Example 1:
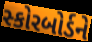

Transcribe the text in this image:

સ્કોરબોર્ડને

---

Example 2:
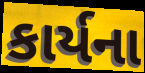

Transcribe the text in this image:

કાર્યના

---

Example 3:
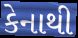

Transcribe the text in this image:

કેનાથી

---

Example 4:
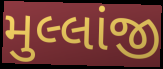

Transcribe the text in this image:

મુલ્લાંજી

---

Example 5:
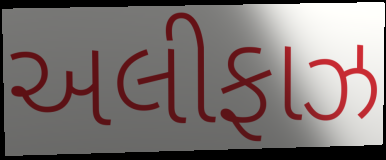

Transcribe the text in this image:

અલીફાઝ